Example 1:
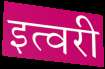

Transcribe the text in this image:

इत्वरी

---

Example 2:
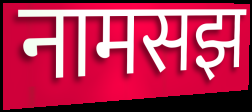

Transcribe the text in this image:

नामसझ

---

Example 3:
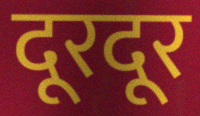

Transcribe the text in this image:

दूरदूर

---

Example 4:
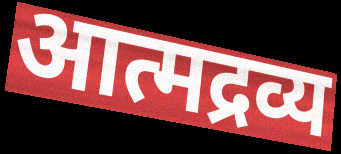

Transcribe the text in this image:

आत्मद्रव्य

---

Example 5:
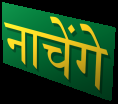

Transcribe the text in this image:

नाचेंगे